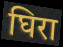
घिरा